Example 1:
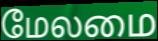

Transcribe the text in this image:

மேலமை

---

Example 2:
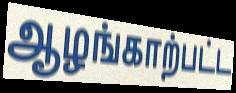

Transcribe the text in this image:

ஆழங்காற்பட்ட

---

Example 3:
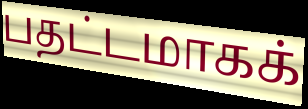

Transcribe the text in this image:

பதட்டமாகக்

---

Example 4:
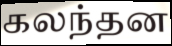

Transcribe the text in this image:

கலந்தன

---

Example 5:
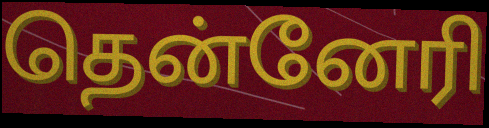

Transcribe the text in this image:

தென்னேரி